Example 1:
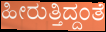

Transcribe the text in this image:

ಹೀರುತ್ತಿದ್ದಂತೆ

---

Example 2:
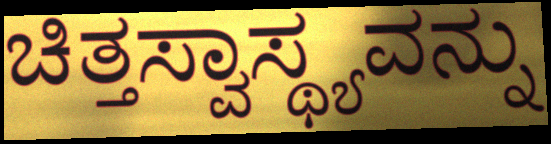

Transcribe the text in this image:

ಚಿತ್ತಸ್ವಾಸ್ಥ್ಯವನ್ನು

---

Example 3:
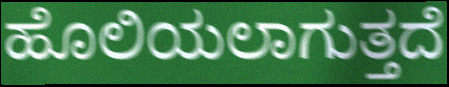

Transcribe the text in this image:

ಹೊಲಿಯಲಾಗುತ್ತದೆ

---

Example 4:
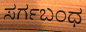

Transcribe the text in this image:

ಸರ್ಗಬಂಧ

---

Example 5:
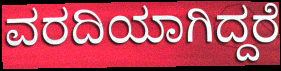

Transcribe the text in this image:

ವರದಿಯಾಗಿದ್ದರೆ